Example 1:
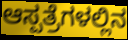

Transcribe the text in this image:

ಆಸ್ಪತ್ರೆಗಳಲ್ಲಿನ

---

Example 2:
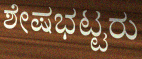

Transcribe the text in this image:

ಶೇಷಭಟ್ಟರು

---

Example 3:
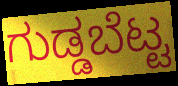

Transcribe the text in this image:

ಗುಡ್ಡಬೆಟ್ಟ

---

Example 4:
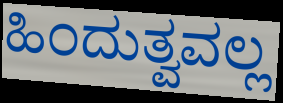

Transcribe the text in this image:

ಹಿಂದುತ್ವವಲ್ಲ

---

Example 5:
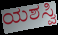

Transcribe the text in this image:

ಯಶಸ್ವಿ